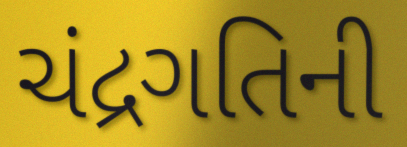
ચંદ્રગતિની